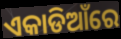
ଏକାଡିଆଁରେ